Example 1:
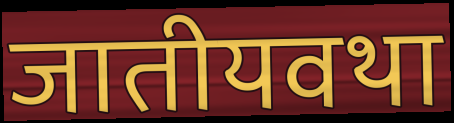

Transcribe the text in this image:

जातीयवथा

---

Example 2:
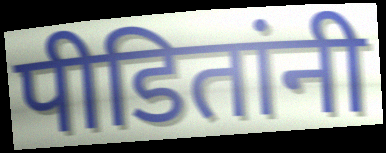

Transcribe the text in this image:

पीडितांनी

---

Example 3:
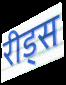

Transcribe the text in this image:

रीड्स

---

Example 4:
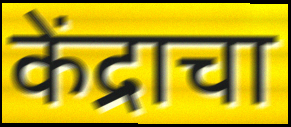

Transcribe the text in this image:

केंद्राचा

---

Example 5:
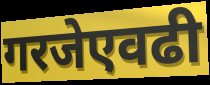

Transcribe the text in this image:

गरजेएवढी